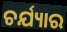
ଚର୍ଯ୍ୟାର